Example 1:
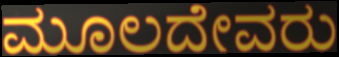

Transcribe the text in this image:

ಮೂಲದೇವರು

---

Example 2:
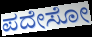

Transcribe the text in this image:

ಪದೇಸೋ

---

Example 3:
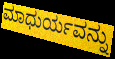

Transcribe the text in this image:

ಮಾಧುರ್ಯವನ್ನು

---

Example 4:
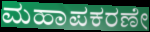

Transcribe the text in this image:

ಮಹಾಪಕರಣೇ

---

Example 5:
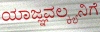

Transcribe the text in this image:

ಯಾಜ್ಞವಲ್ಕ್ಯನಿಗೆ